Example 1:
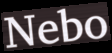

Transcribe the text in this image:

Nebo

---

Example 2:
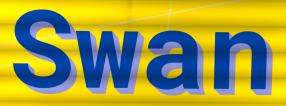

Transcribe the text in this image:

Swan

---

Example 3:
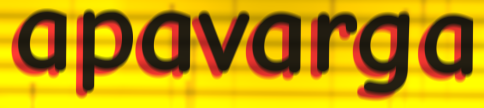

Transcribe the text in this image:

apavarga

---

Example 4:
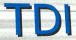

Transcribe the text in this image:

TDI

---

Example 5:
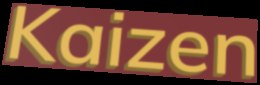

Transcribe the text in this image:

Kaizen